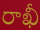
రాఖీ